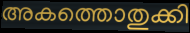
അകത്തൊതുക്കി